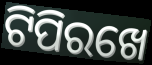
ଟିପିରଖେ